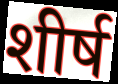
शीर्ष